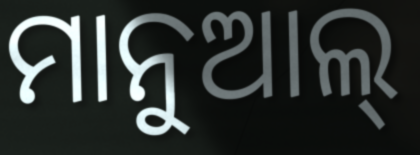
ମାନୁଆଲ୍